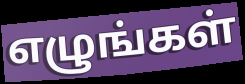
எழுங்கள்